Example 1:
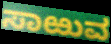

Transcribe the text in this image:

ಸಾಱುವ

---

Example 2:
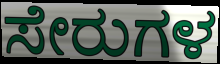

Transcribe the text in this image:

ಸೇರುಗಳ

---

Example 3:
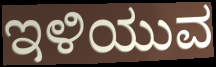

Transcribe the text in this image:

ಇಳಿಯುವ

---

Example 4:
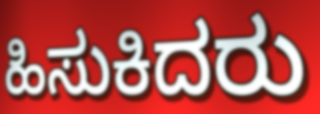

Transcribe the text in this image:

ಹಿಸುಕಿದರು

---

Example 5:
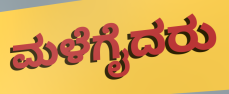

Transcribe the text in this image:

ಮಳೆಗೈದರು